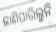
ଜାଣିପାରିଲୁନି